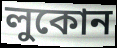
লুকোন